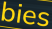
bies